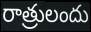
రాత్రులందు